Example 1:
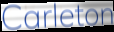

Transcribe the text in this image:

Carleton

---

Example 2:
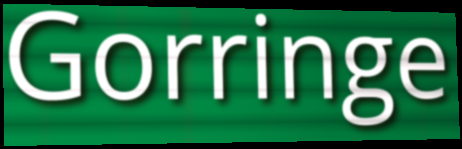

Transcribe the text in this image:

Gorringe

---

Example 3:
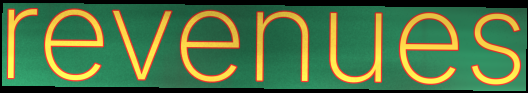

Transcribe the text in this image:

revenues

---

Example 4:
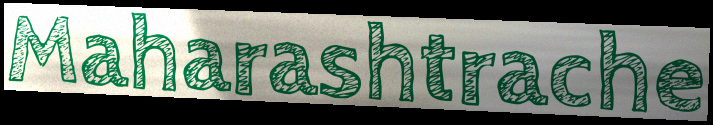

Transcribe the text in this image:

Maharashtrache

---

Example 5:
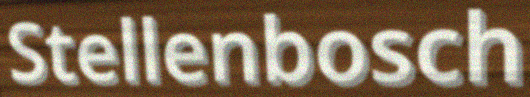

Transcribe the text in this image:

Stellenbosch